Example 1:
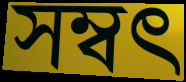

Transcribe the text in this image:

সম্বৎ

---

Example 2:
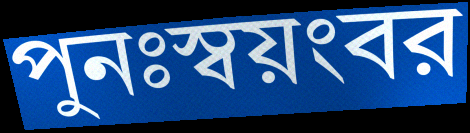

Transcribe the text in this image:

পুনঃস্বয়ংবর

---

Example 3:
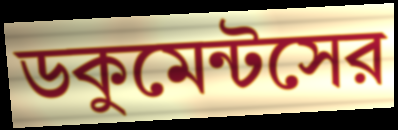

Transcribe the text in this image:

ডকুমেন্টসের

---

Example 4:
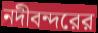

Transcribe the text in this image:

নদীবন্দরের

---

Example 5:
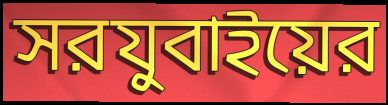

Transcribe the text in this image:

সরযুবাইয়ের